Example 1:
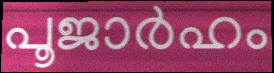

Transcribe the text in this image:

പൂജാർഹം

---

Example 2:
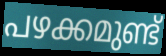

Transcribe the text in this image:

പഴക്കമുണ്ട്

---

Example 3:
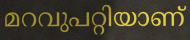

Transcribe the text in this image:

മറവുപറ്റിയാണ്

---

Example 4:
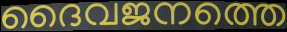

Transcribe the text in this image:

ദൈവജനത്തെ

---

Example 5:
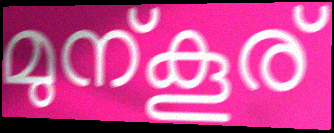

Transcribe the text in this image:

മുന്കൂര്